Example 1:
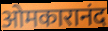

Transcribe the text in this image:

ओमकारानंद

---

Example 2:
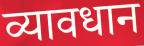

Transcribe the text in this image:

व्यावधान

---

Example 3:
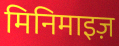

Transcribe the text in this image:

मिनिमाइज़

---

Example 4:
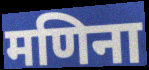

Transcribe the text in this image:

मणिना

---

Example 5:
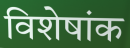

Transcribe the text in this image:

विशेषांक